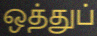
ஒத்துப்